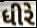
ધીરે